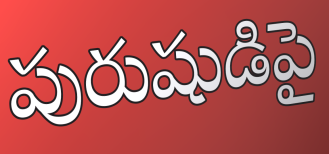
పురుషుడిపై